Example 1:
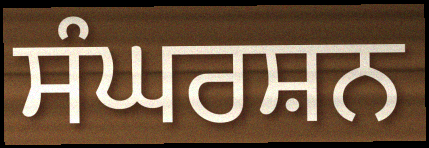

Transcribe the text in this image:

ਸੰਘਰਸ਼ਨ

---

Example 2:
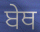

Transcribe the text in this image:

ਬੇਥ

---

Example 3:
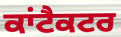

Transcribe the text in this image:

ਕਾਂਟੈਕਟਰ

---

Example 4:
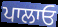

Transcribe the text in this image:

ਪਾਲਾਓ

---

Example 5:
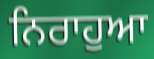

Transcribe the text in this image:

ਨਿਰਾਹੁਆ